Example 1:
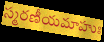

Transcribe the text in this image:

స్మరణీయమాహుః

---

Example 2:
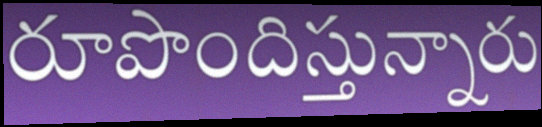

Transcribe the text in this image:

రూపొందిస్తున్నారు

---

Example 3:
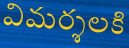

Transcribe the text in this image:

విమర్శలకి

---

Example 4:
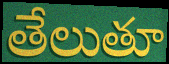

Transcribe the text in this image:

తేలుతూ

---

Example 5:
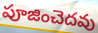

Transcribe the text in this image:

పూజించెదవు